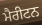
ਮੈਰੀਟਨ